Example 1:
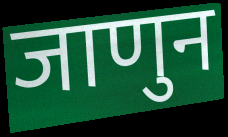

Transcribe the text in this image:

जाणुन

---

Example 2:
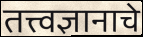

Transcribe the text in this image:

तत्त्वज्ञानाचे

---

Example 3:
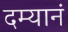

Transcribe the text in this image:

दम्यानं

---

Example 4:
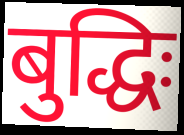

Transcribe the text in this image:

बुद्धिः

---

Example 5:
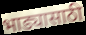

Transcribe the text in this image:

भाड्यासाठी